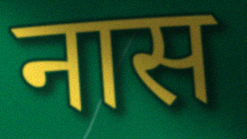
नास